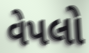
વેપલો